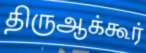
திருஆக்கூர்